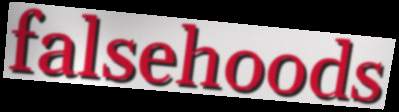
falsehoods